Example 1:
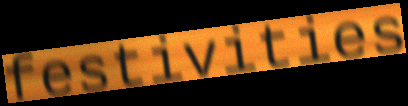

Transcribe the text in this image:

festivities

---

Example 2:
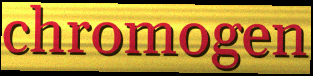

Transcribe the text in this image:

chromogen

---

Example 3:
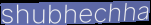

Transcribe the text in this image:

shubhechha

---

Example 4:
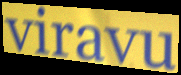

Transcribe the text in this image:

viravu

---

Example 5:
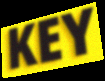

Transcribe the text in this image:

KEY